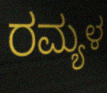
ರಮ್ಯಳ